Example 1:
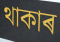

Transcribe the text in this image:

থাকাৰ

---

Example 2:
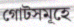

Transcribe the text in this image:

গোটসমূহে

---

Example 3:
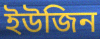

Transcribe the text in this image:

ইউজিন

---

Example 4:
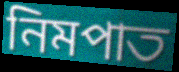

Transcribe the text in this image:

নিমপাত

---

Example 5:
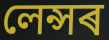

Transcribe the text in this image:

লেন্সৰ